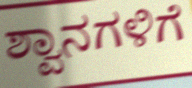
ಶ್ವಾನಗಳಿಗೆ